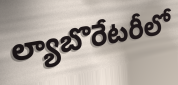
ల్యాబొరేటరీలో